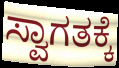
ಸ್ವಾಗತಕ್ಕೆ